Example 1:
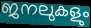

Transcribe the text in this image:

ജനലുകളും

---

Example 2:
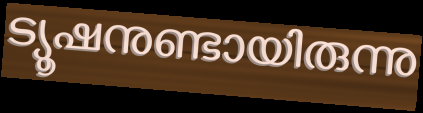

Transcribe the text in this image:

ട്യൂഷനുണ്ടായിരുന്നു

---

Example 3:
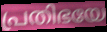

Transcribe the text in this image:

പ്രതിഭയേ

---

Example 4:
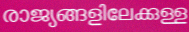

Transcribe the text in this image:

രാജ്യങ്ങളിലേക്കുള്ള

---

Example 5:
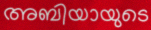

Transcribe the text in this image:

അബിയായുടെ